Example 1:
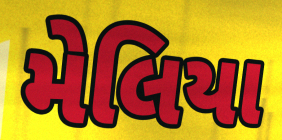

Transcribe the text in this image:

મેલિયા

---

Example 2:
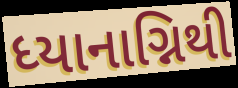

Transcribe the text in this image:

ધ્યાનાગ્નિથી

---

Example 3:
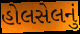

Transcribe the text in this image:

હોલસેલનું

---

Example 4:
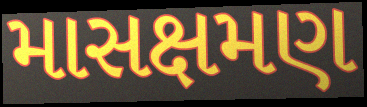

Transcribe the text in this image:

માસક્ષમણ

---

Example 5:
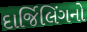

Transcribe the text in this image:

દાર્જિલિંગનો